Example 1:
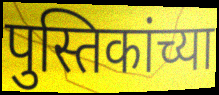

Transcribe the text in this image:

पुस्तिकांच्या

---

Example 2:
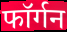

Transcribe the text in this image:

फॉर्गन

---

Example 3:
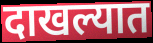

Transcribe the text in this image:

दाखल्यात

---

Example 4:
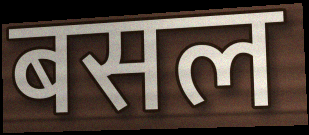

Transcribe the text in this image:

बसल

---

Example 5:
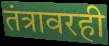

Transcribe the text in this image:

तंत्रावरही